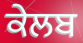
ਕੇਲਬ